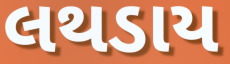
લથડાય